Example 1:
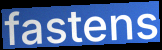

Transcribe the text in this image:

fastens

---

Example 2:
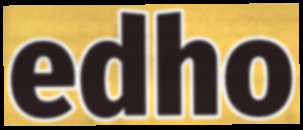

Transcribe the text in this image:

edho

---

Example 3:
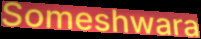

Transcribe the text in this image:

Someshwara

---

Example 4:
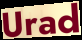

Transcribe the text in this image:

Urad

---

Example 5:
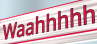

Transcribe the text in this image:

Waahhhhh